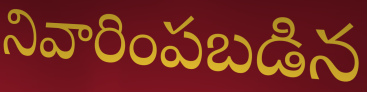
నివారింపబడిన